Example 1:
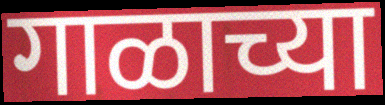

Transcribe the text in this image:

गाळाच्या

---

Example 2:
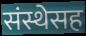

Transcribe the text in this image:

संस्थेसह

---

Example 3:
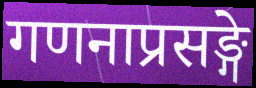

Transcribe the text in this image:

गणनाप्रसङ्गे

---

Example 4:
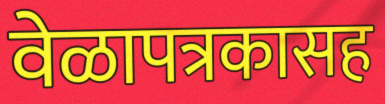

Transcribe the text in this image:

वेळापत्रकासह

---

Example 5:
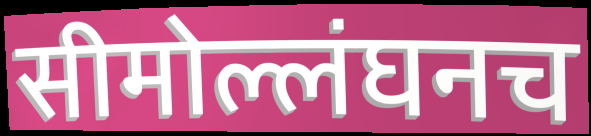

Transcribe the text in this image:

सीमोल्लंघनच